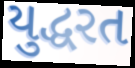
યુદ્ધરત